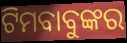
ଟିମବାବୁଙ୍କର